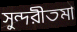
সুন্দরীতমা